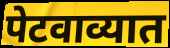
पेटवाव्यात